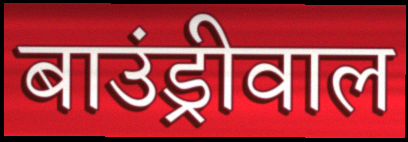
बाउंड्रीवाल